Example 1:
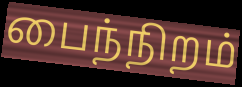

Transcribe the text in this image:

பைந்நிறம்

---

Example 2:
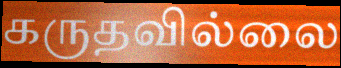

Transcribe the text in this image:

கருதவில்லை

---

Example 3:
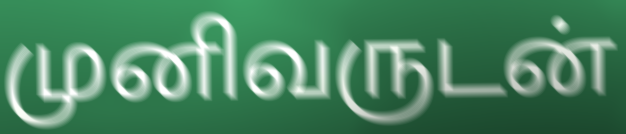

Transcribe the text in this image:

முனிவருடன்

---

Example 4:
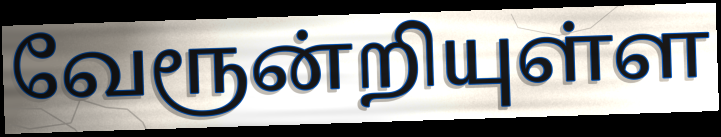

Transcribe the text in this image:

வேரூன்றியுள்ள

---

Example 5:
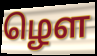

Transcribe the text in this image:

ழௌ